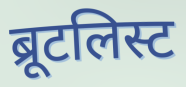
ब्रूटलिस्ट